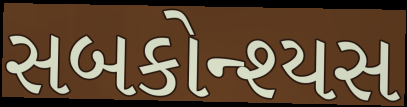
સબકોન્શ્યસ